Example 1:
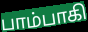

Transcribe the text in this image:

பாம்பாகி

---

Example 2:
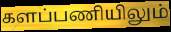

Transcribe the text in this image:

களப்பணியிலும்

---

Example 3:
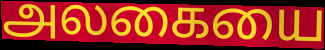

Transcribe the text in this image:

அலகையை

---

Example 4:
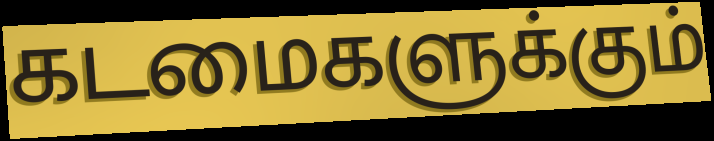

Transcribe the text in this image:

கடமைகளுக்கும்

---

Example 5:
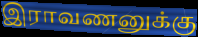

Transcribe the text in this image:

இராவணனுக்கு